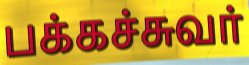
பக்கச்சுவர்